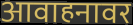
आवाहनावर